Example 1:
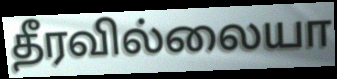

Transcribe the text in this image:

தீரவில்லையா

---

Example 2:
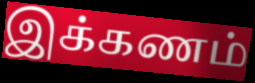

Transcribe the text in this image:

இக்கணம்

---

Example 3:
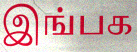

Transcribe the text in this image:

இங்பக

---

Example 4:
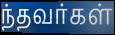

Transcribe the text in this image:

ந்தவர்கள்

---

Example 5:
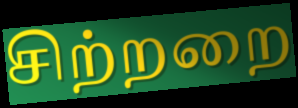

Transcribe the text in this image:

சிற்றறை